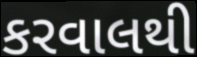
કરવાલથી